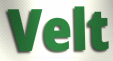
Velt